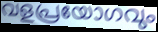
വളപ്രയോഗവും